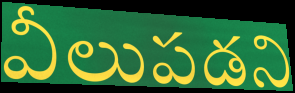
వీలుపడని